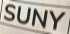
SUNY